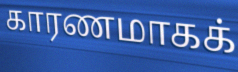
காரணமாகக்